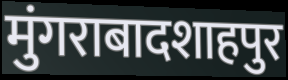
मुंगराबादशाहपुर